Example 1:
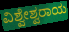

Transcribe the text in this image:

ವಿಶ್ವೇಶ್ವರಾಯ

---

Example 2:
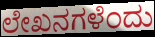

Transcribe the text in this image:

ಲೇಖನಗಳೆಂದು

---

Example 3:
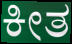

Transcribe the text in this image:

ಕೀತ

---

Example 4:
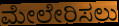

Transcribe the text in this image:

ಮೇಲೇರಿಸಲು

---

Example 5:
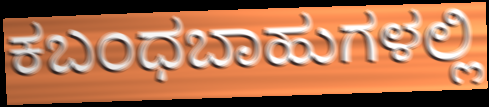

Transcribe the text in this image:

ಕಬಂಧಬಾಹುಗಳಲ್ಲಿ